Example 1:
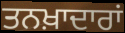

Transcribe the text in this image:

ਤਨਖ਼ਾਦਾਰਾਂ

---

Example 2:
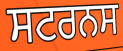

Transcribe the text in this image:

ਸਟਰਨਸ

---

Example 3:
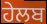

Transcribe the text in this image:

ਹੇਲਬ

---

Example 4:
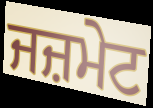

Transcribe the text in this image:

ਜਜ਼ਮੇਟ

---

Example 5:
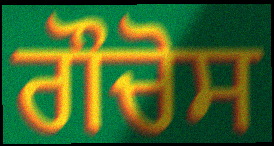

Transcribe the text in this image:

ਗੌਚੋਸ